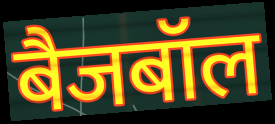
बैजबॉल